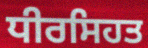
ਧੀਰਸਿਹਤ